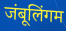
जंबूलिंगम